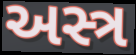
અસ્ત્ર